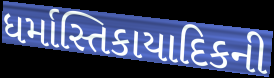
ધર્માસ્તિકાયાદિકની